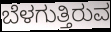
ಬೆಳಗುತ್ತಿರುವ